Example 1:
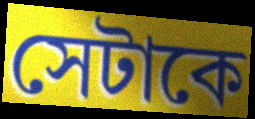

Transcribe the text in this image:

সেটাকে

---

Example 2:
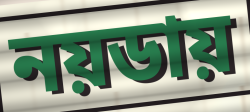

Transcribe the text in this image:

নয়ডায়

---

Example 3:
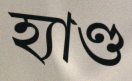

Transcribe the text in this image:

হ্যাণ্ড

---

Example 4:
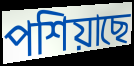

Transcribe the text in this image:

পশিয়াছে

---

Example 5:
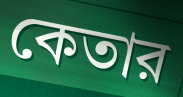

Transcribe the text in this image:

কেতার